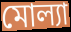
মোল্যা